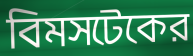
বিমসটেকের